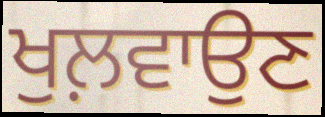
ਖੁਲ਼ਵਾਉਣ